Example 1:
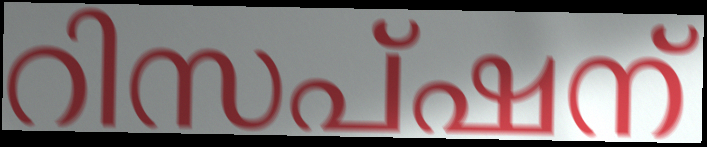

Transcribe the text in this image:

റിസപ്ഷന്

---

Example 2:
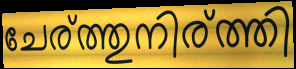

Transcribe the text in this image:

ചേര്ത്തുനിര്ത്തി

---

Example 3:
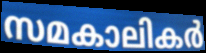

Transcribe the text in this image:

സമകാലികർ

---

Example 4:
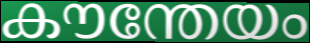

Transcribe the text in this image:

കൗന്തേയം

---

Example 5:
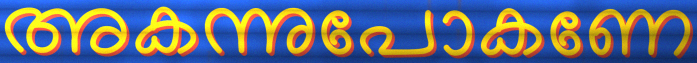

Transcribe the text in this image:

അകന്നുപോകണേ